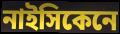
নাইসিকেনে